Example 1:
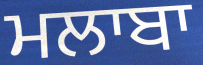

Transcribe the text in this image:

ਮਲਾਬਾ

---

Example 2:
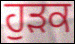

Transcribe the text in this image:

ਹੁੜਕ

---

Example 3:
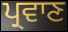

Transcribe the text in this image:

ਪ੍ਰਵਾਣ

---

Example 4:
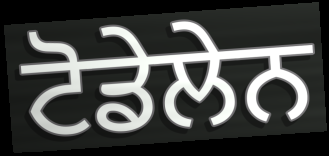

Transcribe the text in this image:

ਟੋਡੇਲੇਨ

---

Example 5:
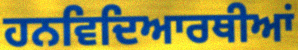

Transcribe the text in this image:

ਹਨਵਿਦਿਆਰਥੀਆਂ